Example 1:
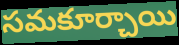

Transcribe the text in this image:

సమకూర్చాయి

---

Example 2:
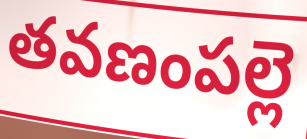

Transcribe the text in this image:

తవణంపల్లె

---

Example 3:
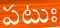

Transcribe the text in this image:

పటుః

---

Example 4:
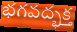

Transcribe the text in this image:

భగవద్భక్త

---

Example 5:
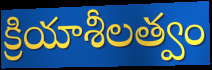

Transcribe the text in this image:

క్రియాశీలత్వం